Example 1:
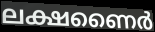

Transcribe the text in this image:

ലക്ഷണൈർ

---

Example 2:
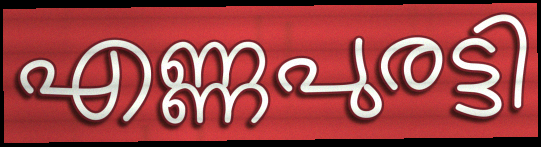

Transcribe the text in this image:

എണ്ണപുരട്ടി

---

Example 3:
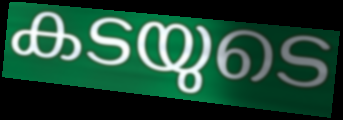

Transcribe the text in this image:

കടയുടെ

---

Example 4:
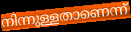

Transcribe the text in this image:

നിന്നുള്ളതാണെന്ന്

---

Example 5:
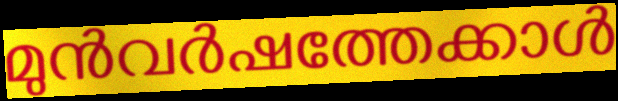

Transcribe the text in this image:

മുൻവർഷത്തേക്കാൾ